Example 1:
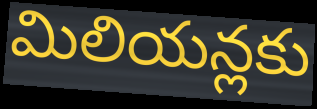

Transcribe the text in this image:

మిలియన్లకు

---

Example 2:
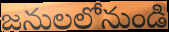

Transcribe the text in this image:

జనులలోనుండి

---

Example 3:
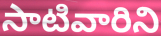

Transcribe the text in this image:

సాటివారిని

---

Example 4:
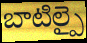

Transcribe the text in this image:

బాటిల్పై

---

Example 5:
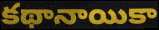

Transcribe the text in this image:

కథానాయికా